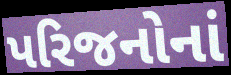
પરિજનોનાં